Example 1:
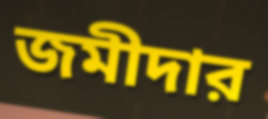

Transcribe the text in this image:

জমীদার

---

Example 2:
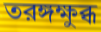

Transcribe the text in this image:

তরঙ্গক্ষুব্ধ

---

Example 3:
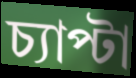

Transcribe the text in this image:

চ্যাপ্টা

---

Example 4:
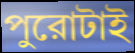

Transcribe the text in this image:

পুরোটাই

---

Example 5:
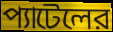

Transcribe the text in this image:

প্যাটেলের